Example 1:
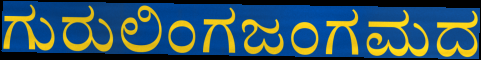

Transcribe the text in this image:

ಗುರುಲಿಂಗಜಂಗಮದ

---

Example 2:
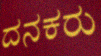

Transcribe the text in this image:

ದನಕರು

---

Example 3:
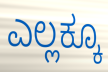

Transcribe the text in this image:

ಎಲ್ಲಕ್ಕೂ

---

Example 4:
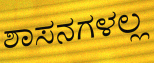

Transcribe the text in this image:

ಶಾಸನಗಳಲ್ಲ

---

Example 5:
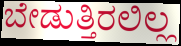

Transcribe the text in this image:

ಬೇಡುತ್ತಿರಲಿಲ್ಲ